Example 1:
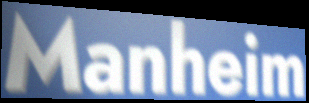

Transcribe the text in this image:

Manheim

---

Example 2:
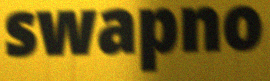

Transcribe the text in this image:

swapno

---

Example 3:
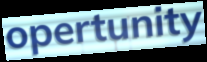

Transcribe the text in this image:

opertunity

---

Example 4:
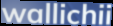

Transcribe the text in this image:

wallichii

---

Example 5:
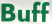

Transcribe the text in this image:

Buff